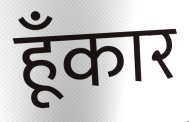
हूँकार